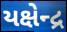
યક્ષેન્દ્ર